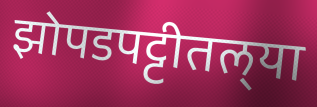
झोपडपट्टीतल्या